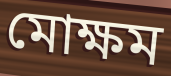
মোক্ষম